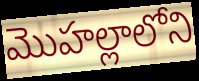
మొహల్లాలోని